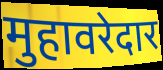
मुहावरेदार